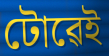
টোৱেই